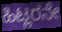
ಹಿಟ್ಲರನೇ